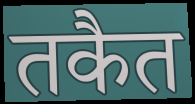
तकैत